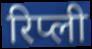
रिप्ली